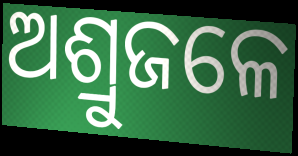
ଅଶ୍ରୁଜଳେ